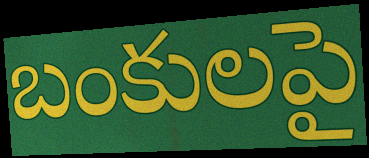
బంకులపై